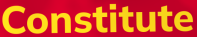
Constitute